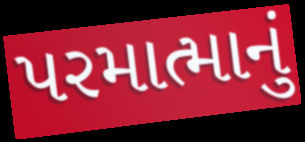
પરમાત્માનું